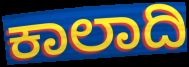
ಕಾಲಾದಿ